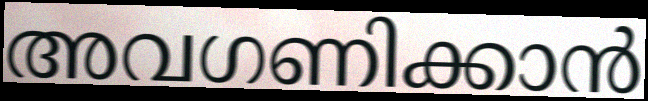
അവഗണിക്കാൻ